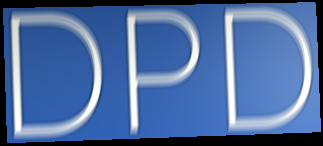
DPD